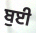
ਬੁਈ